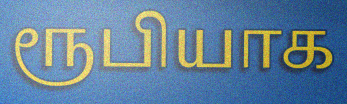
ரூபியாக